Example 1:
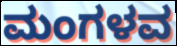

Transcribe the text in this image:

ಮಂಗಳವ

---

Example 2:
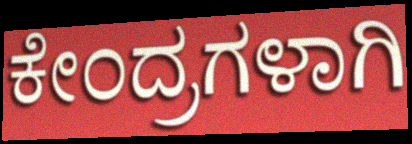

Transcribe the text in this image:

ಕೇಂದ್ರಗಳಾಗಿ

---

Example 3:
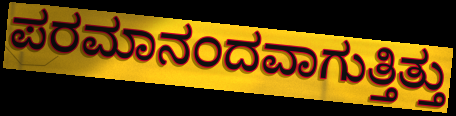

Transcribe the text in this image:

ಪರಮಾನಂದವಾಗುತ್ತಿತ್ತು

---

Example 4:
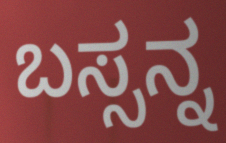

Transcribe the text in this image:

ಬಸ್ಸನ್ನ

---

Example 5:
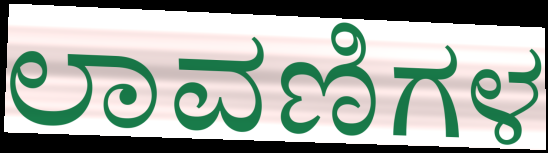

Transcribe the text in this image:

ಲಾವಣಿಗಳ